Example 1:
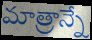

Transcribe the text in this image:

మాత్రాన్నే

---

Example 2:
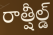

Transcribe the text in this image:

రాత్షీల్డ్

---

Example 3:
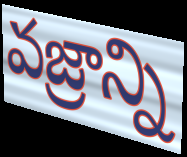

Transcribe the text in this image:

వజ్రాన్ని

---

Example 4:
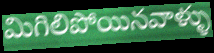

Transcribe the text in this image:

మిగిలిపోయినవాళ్ళు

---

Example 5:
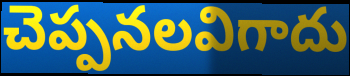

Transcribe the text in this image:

చెప్పనలవిగాదు